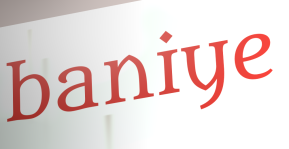
baniye